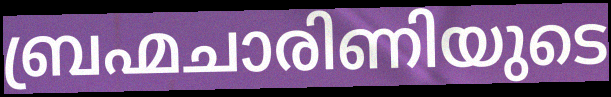
ബ്രഹ്മചാരിണിയുടെ